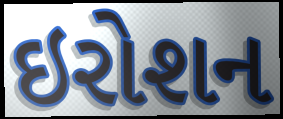
ઇરોશન